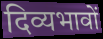
दिव्यभावों